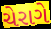
ચેરાગે